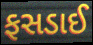
ફસડાઈ